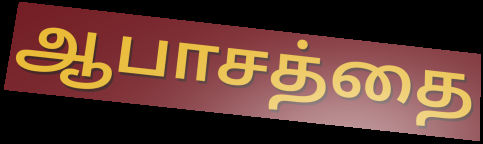
ஆபாசத்தை